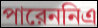
পারেননিএ